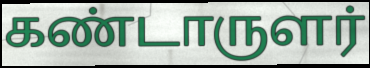
கண்டாருளர்